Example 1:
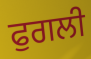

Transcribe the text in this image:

ਫੁਗਲੀ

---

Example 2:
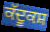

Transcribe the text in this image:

ਕੱਦੂਕਸ਼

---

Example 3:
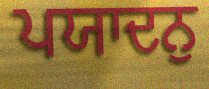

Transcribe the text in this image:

ਪਯਾਦਨੁ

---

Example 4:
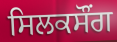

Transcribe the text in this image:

ਸਿਲਕਸੌਂਗ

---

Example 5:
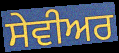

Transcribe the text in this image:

ਸੇਵੀਅਰ